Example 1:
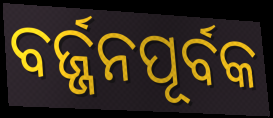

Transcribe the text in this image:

ବର୍ଜ୍ଜନପୂର୍ବକ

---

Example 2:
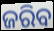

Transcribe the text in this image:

ଜରିବ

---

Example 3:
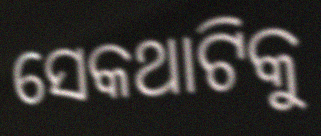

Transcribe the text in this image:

ସେକଥାଟିକୁ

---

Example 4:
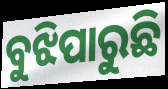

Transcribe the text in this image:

ବୁଝିପାରୁଛି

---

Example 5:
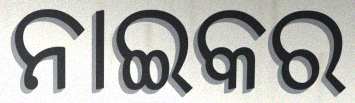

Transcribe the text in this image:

ନାଇକର